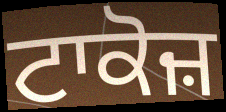
ਟਾਕੋਜ਼